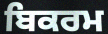
ਬਿਕਰਮ